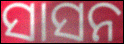
ସାସନ